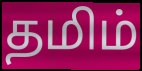
தமிம்